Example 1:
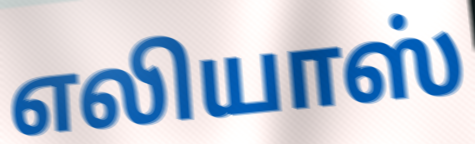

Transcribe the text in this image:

எலியாஸ்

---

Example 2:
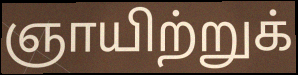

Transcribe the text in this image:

ஞாயிற்றுக்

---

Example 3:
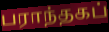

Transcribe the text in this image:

பராந்தகப்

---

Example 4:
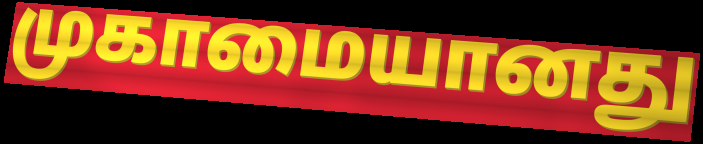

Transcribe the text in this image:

முகாமையானது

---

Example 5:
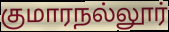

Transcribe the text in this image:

குமாரநல்லூர்